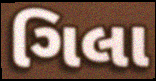
ગિલા